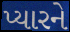
પ્યારને